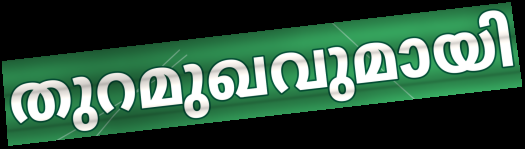
തുറമുഖവുമായി